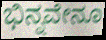
ಭಿನ್ನವೇನೂ